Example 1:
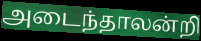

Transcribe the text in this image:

அடைந்தாலன்றி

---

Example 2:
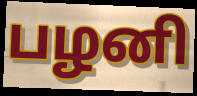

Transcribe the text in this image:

பழனி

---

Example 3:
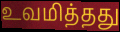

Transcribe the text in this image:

உவமித்தது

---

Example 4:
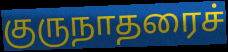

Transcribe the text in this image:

குருநாதரைச்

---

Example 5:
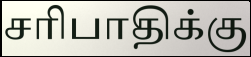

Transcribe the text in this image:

சரிபாதிக்கு